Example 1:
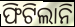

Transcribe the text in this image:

ଫିଟିଲାନି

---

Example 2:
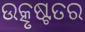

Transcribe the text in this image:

ଉତ୍କୃଷ୍ଟତର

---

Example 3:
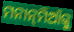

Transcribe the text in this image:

ମନାନ୍‌ମିଆଁକୁ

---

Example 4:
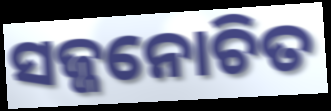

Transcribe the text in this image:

ସଜ୍ଜନୋଚିତ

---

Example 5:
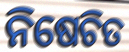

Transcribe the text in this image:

ନିଷେଚିତ